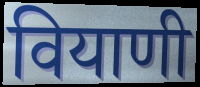
वियाणी